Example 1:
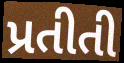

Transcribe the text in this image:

પ્રતીતી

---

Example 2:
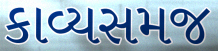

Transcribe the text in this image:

કાવ્યસમજ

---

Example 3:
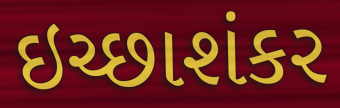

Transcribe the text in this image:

ઇચ્છાશંકર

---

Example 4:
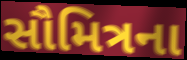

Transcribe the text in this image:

સૌમિત્રના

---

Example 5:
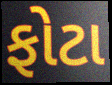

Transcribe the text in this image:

ફોટા